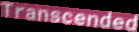
Transcended